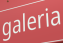
galeria